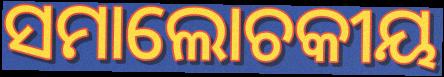
ସମାଲୋଚକୀୟ